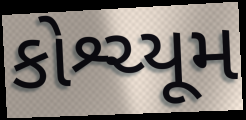
કોશ્ચ્યૂમ